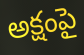
అక్షంపై